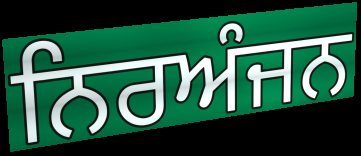
ਨਿਰਅੰਜਨ